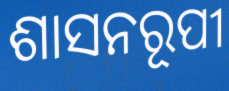
ଶାସନରୂପୀ